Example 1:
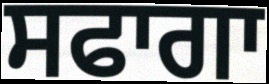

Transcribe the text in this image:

ਸਫਾਗਾ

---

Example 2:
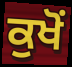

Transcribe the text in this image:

ਕੁਖੋਂ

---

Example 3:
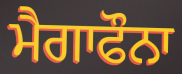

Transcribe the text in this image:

ਮੈਗਾਫੌਨਾ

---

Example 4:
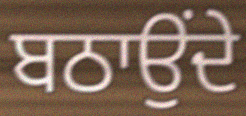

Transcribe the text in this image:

ਬਠਾਉਂਦੇ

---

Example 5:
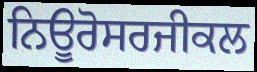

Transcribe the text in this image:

ਨਿਊਰੋਸਰਜੀਕਲ